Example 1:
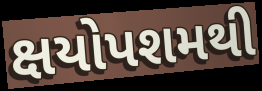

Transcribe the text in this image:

ક્ષયોપશમથી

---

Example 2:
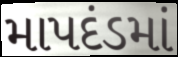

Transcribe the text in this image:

માપદંડમાં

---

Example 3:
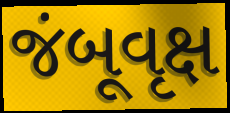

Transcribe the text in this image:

જંબૂવૃક્ષ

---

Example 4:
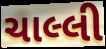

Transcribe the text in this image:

ચાલ્લી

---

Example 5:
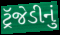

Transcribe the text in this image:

ટ્રૅજેડીનું